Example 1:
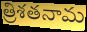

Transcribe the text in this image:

త్రిశతనామ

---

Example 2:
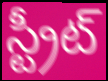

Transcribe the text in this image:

స్ట్రీట్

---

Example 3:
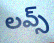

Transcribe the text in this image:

లవ్స్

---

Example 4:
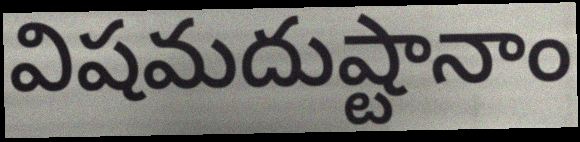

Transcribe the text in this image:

విషమదుష్టానాం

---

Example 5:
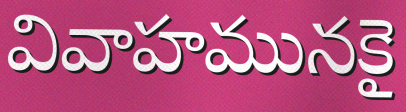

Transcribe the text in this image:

వివాహమునకై